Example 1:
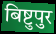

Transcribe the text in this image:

बिष्टुपुर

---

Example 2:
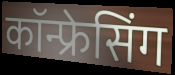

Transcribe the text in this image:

कॉन्फ्रेसिंग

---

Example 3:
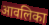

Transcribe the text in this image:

आवलिका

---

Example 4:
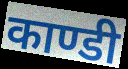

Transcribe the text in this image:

काण्डी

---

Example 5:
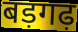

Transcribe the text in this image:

बड़गढ़